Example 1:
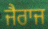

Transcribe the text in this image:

ਜੈਰਾਜ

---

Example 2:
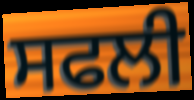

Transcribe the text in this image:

ਸਫਲੀ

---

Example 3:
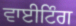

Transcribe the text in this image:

ਵਾਈਟਿੰਗ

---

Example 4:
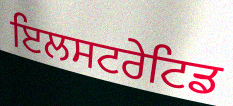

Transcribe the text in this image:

ਇਲਸਟਰੇਟਿਡ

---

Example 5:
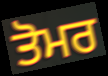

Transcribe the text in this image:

ਤੋਮਰ